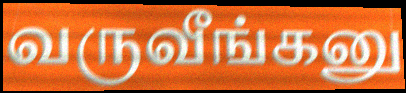
வருவீங்கனு